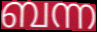
ബന്ന